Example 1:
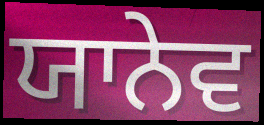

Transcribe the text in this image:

ਯਾਨੇਵ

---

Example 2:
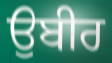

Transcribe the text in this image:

ਉਬੀਰ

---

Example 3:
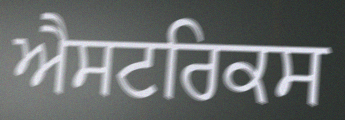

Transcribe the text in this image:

ਐਸਟਰਿਕਸ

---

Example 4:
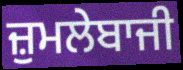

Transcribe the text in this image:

ਜ਼ੁਮਲੇਬਾਜੀ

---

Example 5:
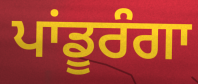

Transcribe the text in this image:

ਪਾਂਡੂਰੰਗਾ